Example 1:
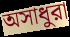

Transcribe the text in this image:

অসাধুরা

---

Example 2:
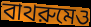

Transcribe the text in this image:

বাথরুমেও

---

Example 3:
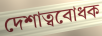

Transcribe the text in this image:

দেশাত্ববোধক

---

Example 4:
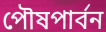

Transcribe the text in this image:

পৌষপার্বন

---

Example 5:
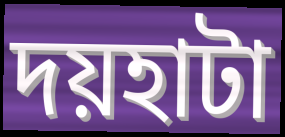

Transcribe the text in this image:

দয়হাটা